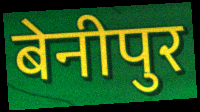
बेनीपुर